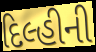
દિલ્હીની